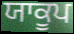
ਯਾਕੂਪ